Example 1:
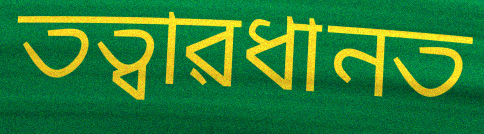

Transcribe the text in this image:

তত্বাৱধানত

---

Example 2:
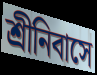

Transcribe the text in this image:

শ্ৰীনিবাসে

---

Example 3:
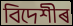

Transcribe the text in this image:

বিদেশীৰ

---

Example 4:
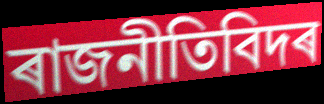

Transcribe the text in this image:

ৰাজনীতিবিদৰ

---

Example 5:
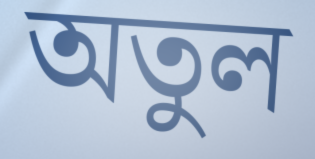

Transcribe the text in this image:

অতুল